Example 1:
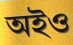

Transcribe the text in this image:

অইও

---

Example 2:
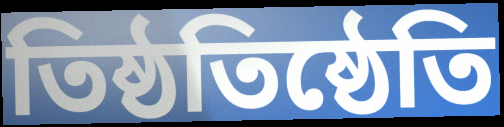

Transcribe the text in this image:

তিষ্ঠতিষ্ঠেতি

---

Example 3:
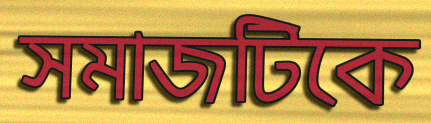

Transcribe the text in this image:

সমাজটিকে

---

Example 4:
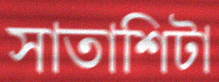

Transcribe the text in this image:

সাতাশিটা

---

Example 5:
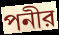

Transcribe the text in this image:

পনীর